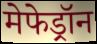
मेफेड्रॉन